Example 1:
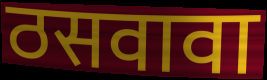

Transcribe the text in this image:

ठसवावा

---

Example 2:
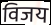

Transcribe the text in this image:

विजय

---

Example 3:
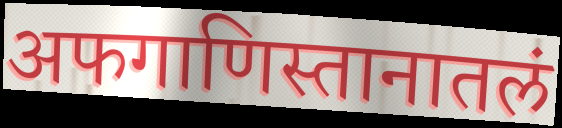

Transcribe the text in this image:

अफगाणिस्तानातलं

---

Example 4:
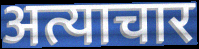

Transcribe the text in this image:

अत्याचार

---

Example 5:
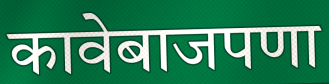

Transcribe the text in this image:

कावेबाजपणा